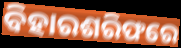
ବିହାରଶରିଫରେ